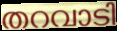
തറവാടി